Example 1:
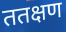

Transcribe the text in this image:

ततक्षण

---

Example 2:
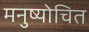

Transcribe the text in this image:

मनुष्योचित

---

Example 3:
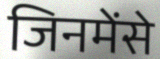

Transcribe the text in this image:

जिनमेंसे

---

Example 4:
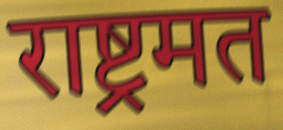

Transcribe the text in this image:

राष्ट्रमत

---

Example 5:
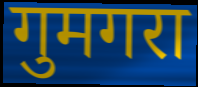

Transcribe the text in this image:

गुमगरा